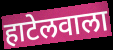
हाटेलवाला